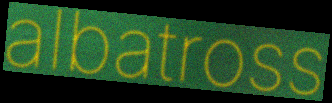
albatross